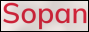
Sopan